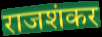
राजशंकर